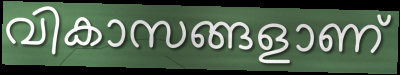
വികാസങ്ങളാണ്